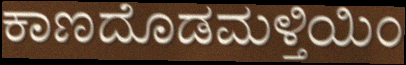
ಕಾಣದೊಡಮಳ್ತಿಯಿಂ